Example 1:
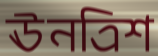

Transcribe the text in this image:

ঊনত্রিশ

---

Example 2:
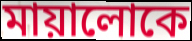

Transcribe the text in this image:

মায়ালোকে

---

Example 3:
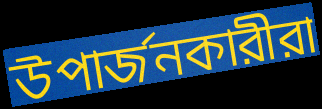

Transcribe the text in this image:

উপার্জনকারীরা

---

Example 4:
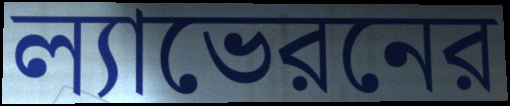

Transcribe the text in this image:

ল্যাভেরনের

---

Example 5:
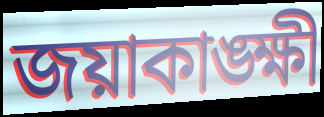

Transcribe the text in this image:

জয়াকাঙ্ক্ষী